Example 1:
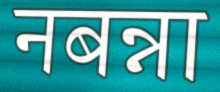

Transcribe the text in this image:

नबन्ना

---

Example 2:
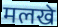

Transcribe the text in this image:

मलखे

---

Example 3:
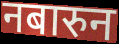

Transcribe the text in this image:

नबारुन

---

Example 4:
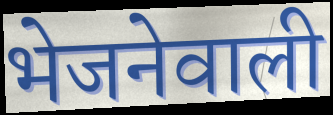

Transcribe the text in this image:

भेजनेवाली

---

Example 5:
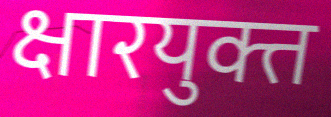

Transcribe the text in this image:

क्षारयुक्त